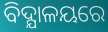
ବିଦ୍ଯାଳୟରେ